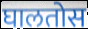
घालतोस